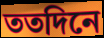
ততদিনে